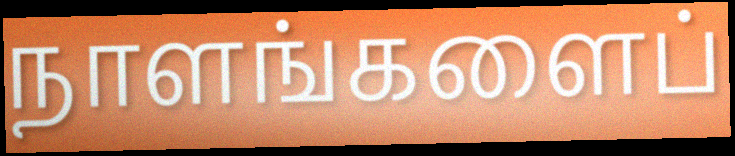
நாளங்களைப்